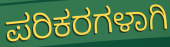
ಪರಿಕರಗಳಾಗಿ